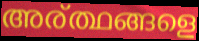
അര്ത്ഥങ്ങളെ